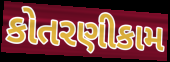
કોતરણીકામ